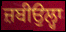
ਜ਼ਬੀਉਲ੍ਹਾ